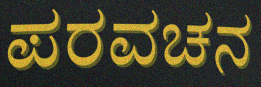
ಪರವಚನ